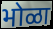
भोळा